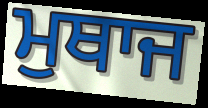
ਮੁਥਾਜ